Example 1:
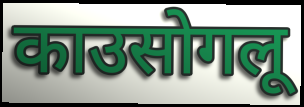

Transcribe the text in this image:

काउसोगलू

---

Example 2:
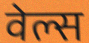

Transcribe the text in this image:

वेल्स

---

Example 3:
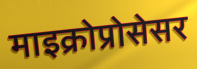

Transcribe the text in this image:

माइक्रोप्रोसेसर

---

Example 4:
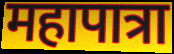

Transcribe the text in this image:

महापात्रा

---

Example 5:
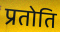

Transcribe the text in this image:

प्रतोति